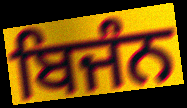
ਬਿਜੰਨ